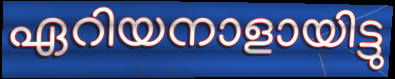
ഏറിയനാളായിട്ടു